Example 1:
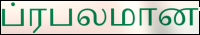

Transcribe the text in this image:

ப்ரபலமான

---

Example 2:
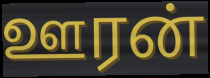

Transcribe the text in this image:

ஊரன்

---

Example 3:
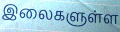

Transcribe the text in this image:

இலைகளுள்ள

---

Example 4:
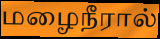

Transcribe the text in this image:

மழைநீரால்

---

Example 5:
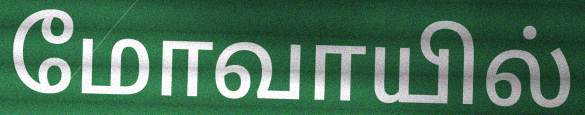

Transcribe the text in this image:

மோவாயில்